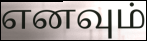
எனவும்